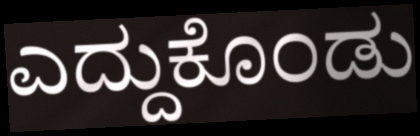
ಎದ್ದುಕೊಂಡು